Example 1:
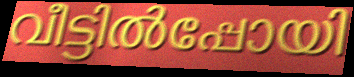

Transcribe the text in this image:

വീട്ടിൽപ്പോയി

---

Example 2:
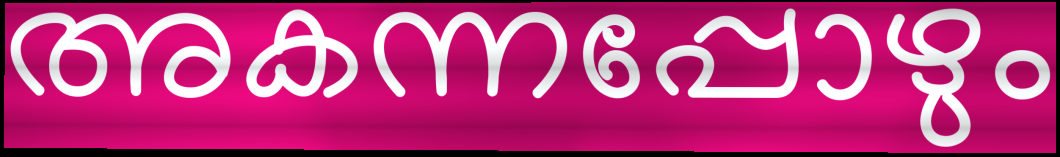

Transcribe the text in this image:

അകന്നപ്പോഴും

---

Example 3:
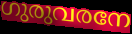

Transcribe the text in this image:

ഗുരുവരനേ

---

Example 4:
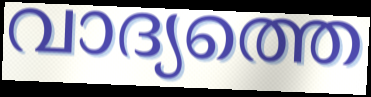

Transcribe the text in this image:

വാദ്യത്തെ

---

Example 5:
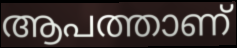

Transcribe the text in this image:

ആപത്താണ്